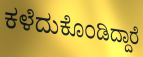
ಕಳೆದುಕೊಂಡಿದ್ದಾರೆ